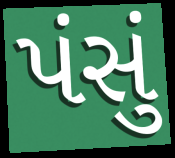
પંસું